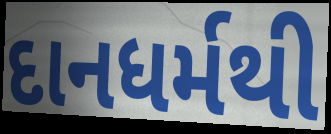
દાનધર્મથી